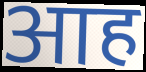
आह